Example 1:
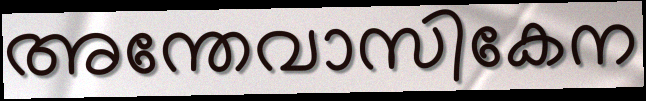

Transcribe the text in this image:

അന്തേവാസികേന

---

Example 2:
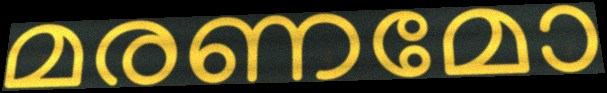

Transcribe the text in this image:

മരണമോ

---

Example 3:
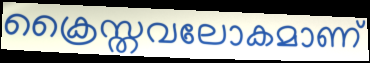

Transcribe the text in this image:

ക്രൈസ്തവലോകമാണ്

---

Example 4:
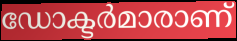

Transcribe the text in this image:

ഡോക്ടർമാരാണ്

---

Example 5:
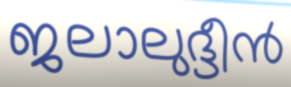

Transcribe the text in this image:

ജലാലുദ്ദീൻ